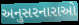
અનુસરનારાઓ